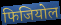
फिजियोल